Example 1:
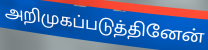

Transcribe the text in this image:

அறிமுகப்படுத்தினேன்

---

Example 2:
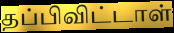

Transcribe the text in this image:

தப்பிவிட்டாள்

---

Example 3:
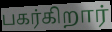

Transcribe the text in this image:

பகர்கிறார்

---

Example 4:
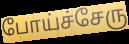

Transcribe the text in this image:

போய்ச்சேரு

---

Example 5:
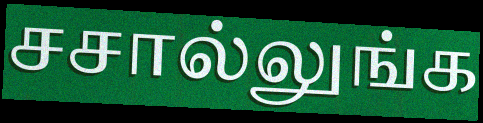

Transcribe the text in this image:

சசால்லுங்க